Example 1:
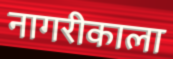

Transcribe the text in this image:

नागरीकाला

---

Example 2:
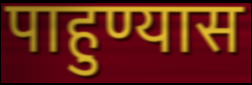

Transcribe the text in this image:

पाहुण्यास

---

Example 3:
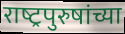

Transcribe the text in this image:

राष्ट्रपुरुषांच्या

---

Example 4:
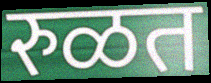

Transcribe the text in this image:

रुळत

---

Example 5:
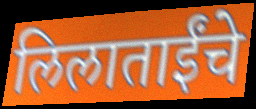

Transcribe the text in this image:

लिलाताईंचे